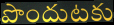
పొందుటకు